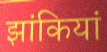
झांकियां